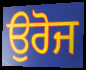
ਉਰੋਜ